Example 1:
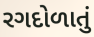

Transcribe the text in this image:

રગદોળાતું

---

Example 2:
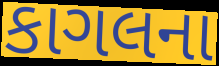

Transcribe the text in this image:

કાગલના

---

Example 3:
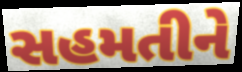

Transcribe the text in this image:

સહમતીને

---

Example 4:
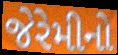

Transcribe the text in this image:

જેરેમીનો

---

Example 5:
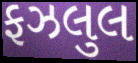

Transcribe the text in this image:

ફઝલુલ